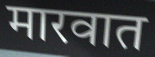
मारवात